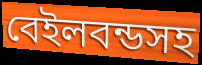
বেইলবন্ডসহ